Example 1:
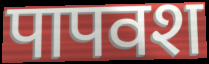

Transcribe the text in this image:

पापवश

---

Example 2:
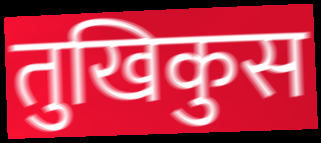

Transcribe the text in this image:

तुखिकुस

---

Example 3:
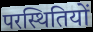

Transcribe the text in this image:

परस्थितियों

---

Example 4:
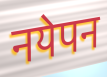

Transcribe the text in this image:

नयेपन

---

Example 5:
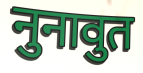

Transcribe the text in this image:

नुनावुत